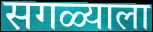
सगळ्याला